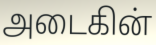
அடைகின்